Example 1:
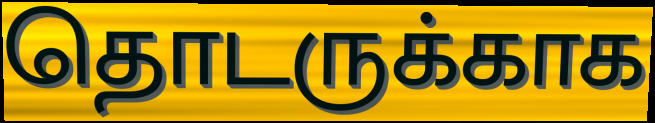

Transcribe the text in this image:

தொடருக்காக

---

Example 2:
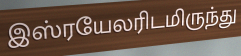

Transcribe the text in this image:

இஸ்ரயேலரிடமிருந்து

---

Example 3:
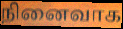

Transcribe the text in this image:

நினைவாக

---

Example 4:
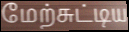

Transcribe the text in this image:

மேற்சுட்டிய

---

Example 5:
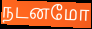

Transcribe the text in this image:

நடனமோ